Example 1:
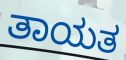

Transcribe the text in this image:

ತಾಯತ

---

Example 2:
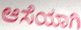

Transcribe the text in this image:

ಆಸೆಯಾಗಿ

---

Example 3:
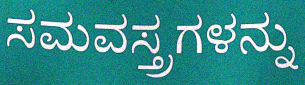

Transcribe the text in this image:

ಸಮವಸ್ತ್ರಗಳನ್ನು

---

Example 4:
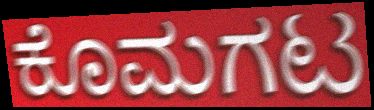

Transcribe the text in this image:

ಕೊಮಗಟ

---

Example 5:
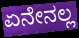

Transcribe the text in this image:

ಏನೇನಲ್ಲ